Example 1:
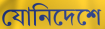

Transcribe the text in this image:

যোনিদেশে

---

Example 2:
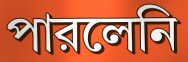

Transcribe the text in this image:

পারলেনি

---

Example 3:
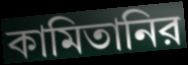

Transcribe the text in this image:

কামিতানির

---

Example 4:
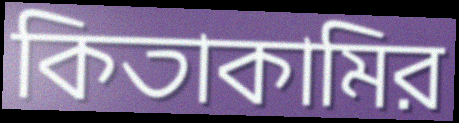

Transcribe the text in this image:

কিতাকামির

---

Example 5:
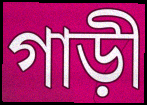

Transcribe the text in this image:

গাড়ী